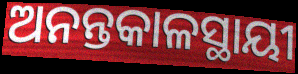
ଅନନ୍ତକାଳସ୍ଥାୟୀ